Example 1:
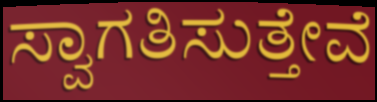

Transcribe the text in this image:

ಸ್ವಾಗತಿಸುತ್ತೇವೆ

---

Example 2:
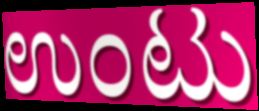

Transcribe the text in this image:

ಉಂಟು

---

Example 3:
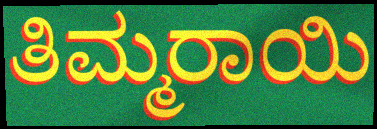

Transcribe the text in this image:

ತಿಮ್ಮರಾಯಿ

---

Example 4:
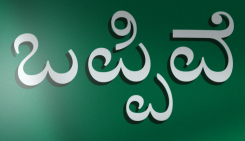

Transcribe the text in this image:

ಒಪ್ಪಿವೆ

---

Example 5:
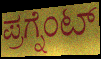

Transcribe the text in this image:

ಪ್ರಗ್ನೆಂಟ್